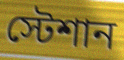
স্টেশান